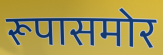
रूपासमोर